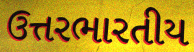
ઉત્તરભારતીય